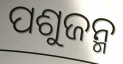
ପଶୁଜନ୍ମ